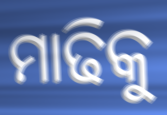
ମାଢିକୁ